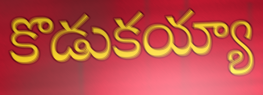
కొడుకయ్యా